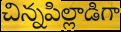
చిన్నపిల్లాడిగా